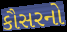
કૌસરનો